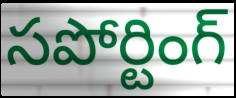
సపోర్టింగ్